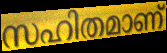
സഹിതമാണ്